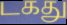
டகது